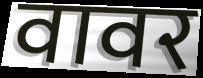
वावर